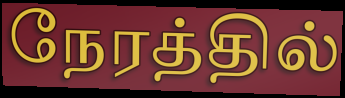
நேரத்தில்